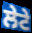
ਲੇਟੇ